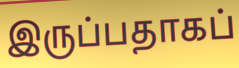
இருப்பதாகப்